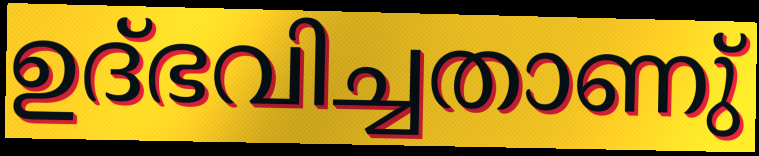
ഉദ്ഭവിച്ചതാണു്